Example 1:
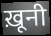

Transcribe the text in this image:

ख़ूनी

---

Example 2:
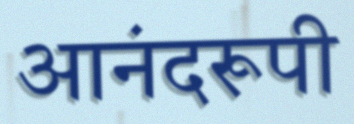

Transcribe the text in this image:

आनंदरूपी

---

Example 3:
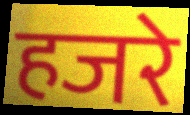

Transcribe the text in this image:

हजरे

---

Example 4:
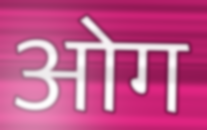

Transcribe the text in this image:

ओग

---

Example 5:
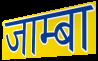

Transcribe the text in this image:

जाम्बा